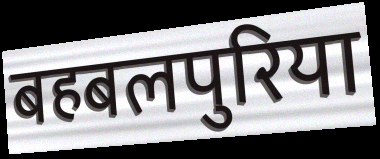
बहबलपुरिया